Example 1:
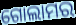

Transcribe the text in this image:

ଗୋଲାମର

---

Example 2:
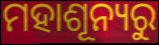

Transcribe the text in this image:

ମହାଶୂନ୍ୟରୁ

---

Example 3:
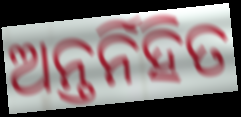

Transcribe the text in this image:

ଅନ୍ତର୍ନିହିତ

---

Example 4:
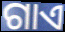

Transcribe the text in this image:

ଗାଏ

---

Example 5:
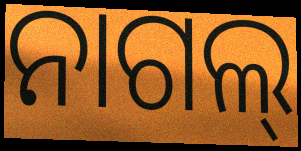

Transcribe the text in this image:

ନାଗଲ୍